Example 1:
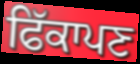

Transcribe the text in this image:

ਫਿੱਕਾਪਣ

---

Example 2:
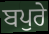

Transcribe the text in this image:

ਬਪੁਰੇ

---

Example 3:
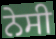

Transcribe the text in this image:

ਨੇਸੀ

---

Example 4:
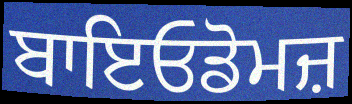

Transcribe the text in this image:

ਬਾਇਓਡੋਮਜ਼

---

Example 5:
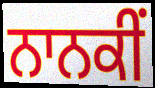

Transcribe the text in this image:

ਨਾਨਕੀਂ